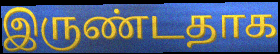
இருண்டதாக